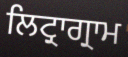
ਲਿਟ੍ਰਾਗ੍ਰਾਮ